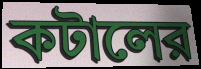
কটালের